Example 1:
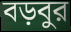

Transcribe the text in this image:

বড়বুর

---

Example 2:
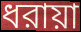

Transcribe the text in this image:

ধরায়া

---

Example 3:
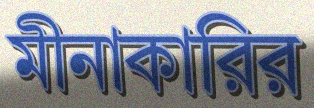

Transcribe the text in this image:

মীনাকারির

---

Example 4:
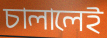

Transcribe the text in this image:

চালালেই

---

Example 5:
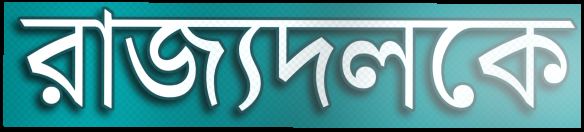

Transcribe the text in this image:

রাজ্যদলকে